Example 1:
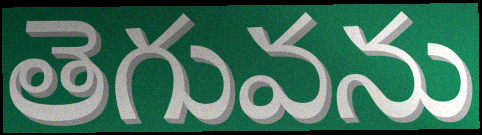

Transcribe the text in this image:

తెగువను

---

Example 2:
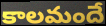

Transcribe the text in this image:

కాలమందే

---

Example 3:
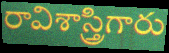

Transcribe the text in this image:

రావిశాస్త్రిగారు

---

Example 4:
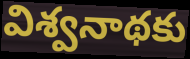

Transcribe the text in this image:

విశ్వనాథకు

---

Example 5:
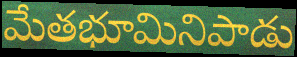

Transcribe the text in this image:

మేతభూమినిపాడు